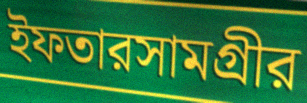
ইফতারসামগ্রীর